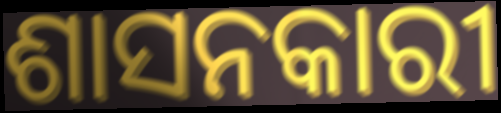
ଶାସନକାରୀ